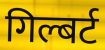
गिल्बर्ट